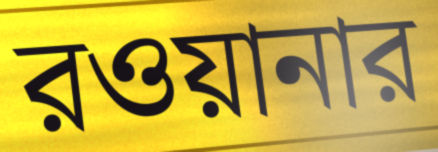
রওয়ানার